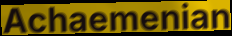
Achaemenian